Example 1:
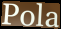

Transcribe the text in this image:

Pola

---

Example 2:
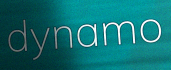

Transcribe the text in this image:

dynamo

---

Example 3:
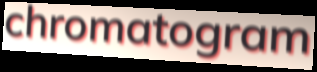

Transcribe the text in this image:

chromatogram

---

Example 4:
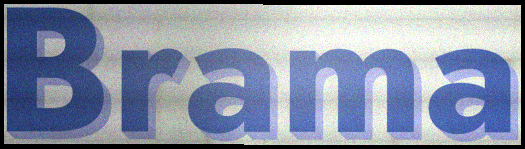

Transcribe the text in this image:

Brama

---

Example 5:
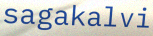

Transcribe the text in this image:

sagakalvi